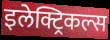
इलेक्ट्रिकल्स